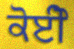
ਕੋਈੋ